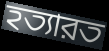
হত্যারত